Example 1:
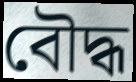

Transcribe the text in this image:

বৌদ্ধ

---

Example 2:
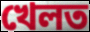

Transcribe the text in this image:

খেলত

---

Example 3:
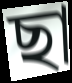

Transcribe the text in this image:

ছা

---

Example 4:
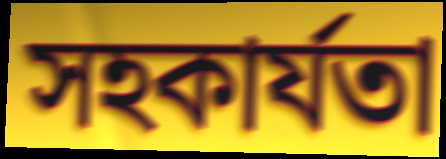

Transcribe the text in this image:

সহকাৰ্যতা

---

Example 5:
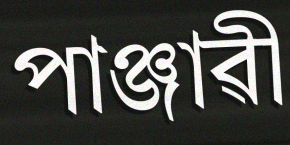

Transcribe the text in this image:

পাঞ্জাৱী